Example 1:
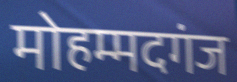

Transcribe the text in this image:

मोहम्मदगंज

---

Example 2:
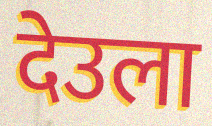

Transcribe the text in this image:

देउला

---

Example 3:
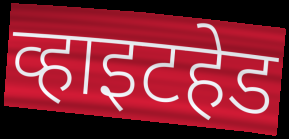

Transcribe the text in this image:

व्हाइटहेड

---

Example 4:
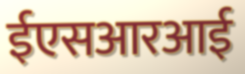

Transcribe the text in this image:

ईएसआरआई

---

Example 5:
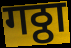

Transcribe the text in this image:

गठ्ठा